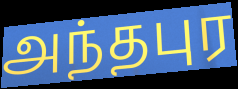
அந்தபுர